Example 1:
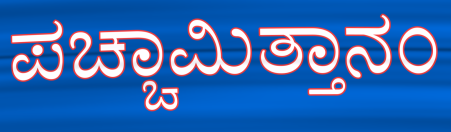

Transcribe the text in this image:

ಪಚ್ಚಾಮಿತ್ತಾನಂ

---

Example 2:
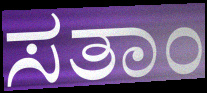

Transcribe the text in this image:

ಸತಾಂ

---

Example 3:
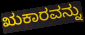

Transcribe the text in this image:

ಋಕಾರವನ್ನು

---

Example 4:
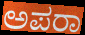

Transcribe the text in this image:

ಅಪರಾ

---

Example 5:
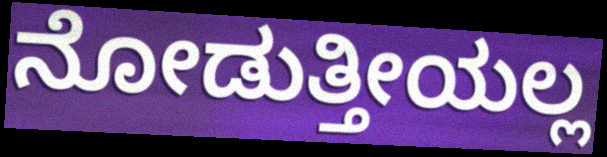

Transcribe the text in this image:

ನೋಡುತ್ತೀಯಲ್ಲ